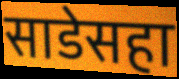
साडेसहा